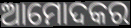
ଆମୋଦକର